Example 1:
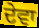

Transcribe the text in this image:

ਦੇਵਾ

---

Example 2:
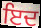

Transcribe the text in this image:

ਇਦ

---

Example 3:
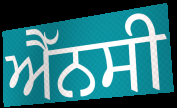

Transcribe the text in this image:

ਐੱਨਸੀ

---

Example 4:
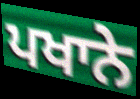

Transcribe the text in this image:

ਪਖਾਨੇ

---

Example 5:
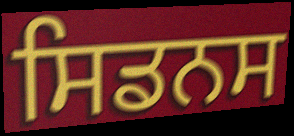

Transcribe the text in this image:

ਸਿਡਨਸ